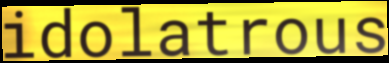
idolatrous